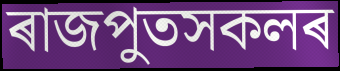
ৰাজপুতসকলৰ